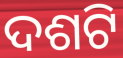
ଦଶଟି